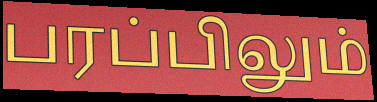
பரப்பிலும்